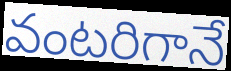
వంటరిగానే